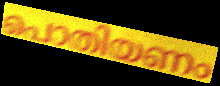
പൊതിയണം